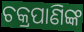
ଚକ୍ରପାଣିଙ୍କ